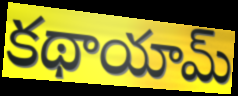
కథాయామ్